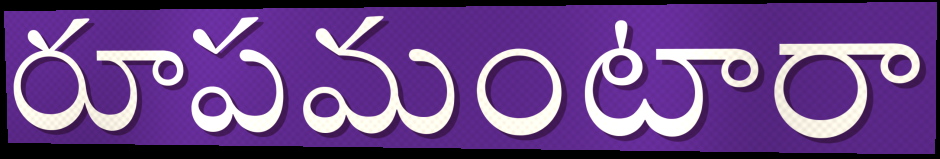
రూపమంటారా